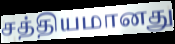
சத்தியமானது